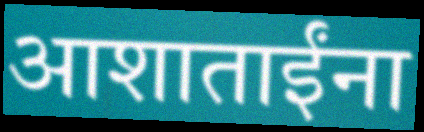
आशाताईंना